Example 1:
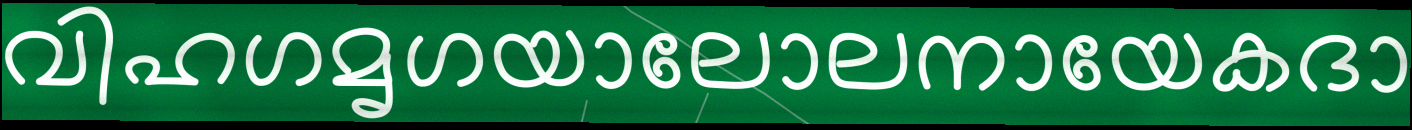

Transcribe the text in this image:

വിഹഗമൃഗയാലോലനായേകദാ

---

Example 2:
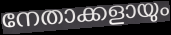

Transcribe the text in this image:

നേതാക്കളായും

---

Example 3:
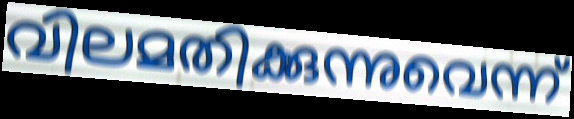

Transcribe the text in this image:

വിലമതിക്കുന്നുവെന്ന്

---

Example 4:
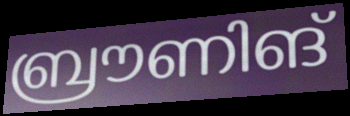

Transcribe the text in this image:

ബ്രൗണിങ്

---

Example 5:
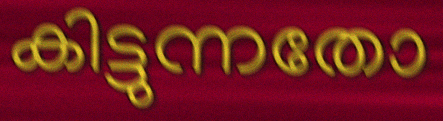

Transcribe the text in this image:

കിട്ടുന്നതോ